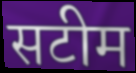
सटीम